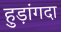
हुड़ांगदा